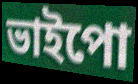
ভাইপো